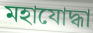
মহাযোদ্ধা